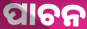
ପାଚନ